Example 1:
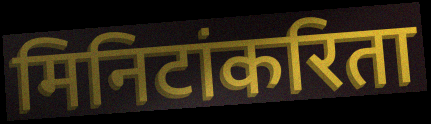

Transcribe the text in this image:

मिनिटांकरिता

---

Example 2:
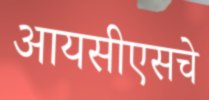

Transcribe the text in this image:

आयसीएसचे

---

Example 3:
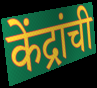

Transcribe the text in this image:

केंद्रांची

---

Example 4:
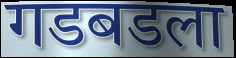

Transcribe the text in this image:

गडबडला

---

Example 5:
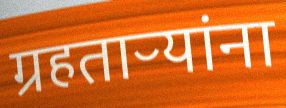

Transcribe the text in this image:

ग्रहताऱ्यांना